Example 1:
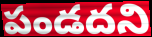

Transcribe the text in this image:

పండదని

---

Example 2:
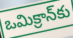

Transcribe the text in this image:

ఒమిక్రాన్‌కు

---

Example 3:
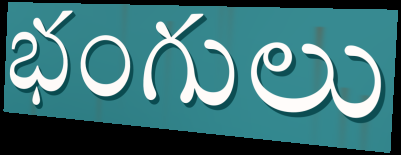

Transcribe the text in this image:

భంగులు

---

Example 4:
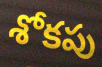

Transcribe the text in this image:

శోకపు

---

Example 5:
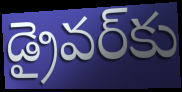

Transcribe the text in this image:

డ్రైవర్‌కు